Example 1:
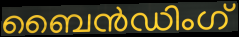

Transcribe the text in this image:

ബൈൻഡിംഗ്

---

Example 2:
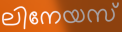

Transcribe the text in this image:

ലിനേയസ്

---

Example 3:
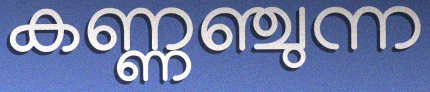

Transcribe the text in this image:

കണ്ണഞ്ചുന്ന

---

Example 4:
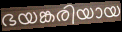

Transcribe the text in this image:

ഭയങ്കരിയായ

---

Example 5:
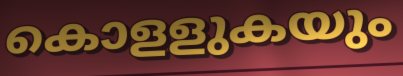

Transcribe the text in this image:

കൊളളുകയും